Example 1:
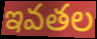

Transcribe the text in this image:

ఇవతల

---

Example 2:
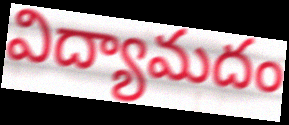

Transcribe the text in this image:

విద్యామదం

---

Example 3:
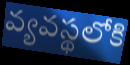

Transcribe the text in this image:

వ్యవస్థలోకి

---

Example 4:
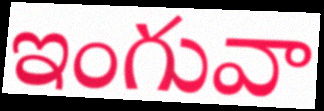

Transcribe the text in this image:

ఇంగువా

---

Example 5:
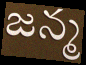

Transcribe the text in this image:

జన్మ